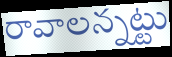
రావాలన్నట్టు